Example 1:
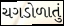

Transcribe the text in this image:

ચગડોળાતું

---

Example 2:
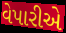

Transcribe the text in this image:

વેપારીએ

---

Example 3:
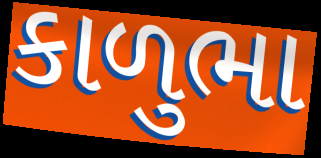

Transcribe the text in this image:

કાળુભા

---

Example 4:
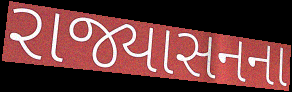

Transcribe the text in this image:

રાજ્યાસનના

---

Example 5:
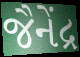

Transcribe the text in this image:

જૈનેંદ્ર